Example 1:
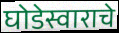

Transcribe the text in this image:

घोडेस्वाराचे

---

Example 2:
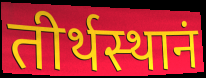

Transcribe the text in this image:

तीर्थस्थानं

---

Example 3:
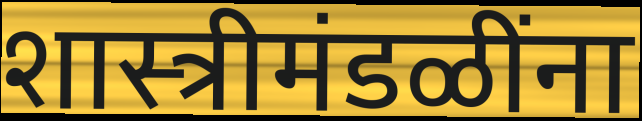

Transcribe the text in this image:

शास्त्रीमंडळींना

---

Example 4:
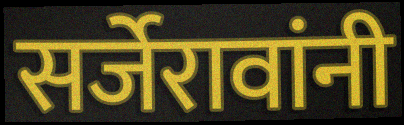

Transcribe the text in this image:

सर्जेरावांनी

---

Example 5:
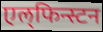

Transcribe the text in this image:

एल्फिन्स्टन